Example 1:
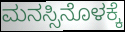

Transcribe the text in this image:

ಮನಸ್ಸಿನೊಳಕ್ಕೆ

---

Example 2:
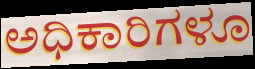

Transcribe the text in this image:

ಅಧಿಕಾರಿಗಳೂ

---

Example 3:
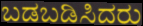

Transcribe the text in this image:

ಬಡಬಡಿಸಿದರು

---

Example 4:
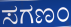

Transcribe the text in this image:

ಸಗಣಂ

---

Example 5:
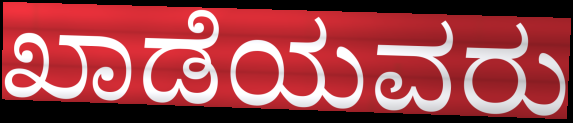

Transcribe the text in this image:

ಖಾಡೆಯವರು